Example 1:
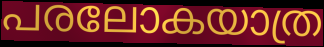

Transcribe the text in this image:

പരലോകയാത്ര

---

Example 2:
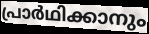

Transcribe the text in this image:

പ്രാർഥിക്കാനും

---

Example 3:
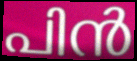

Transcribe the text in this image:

പിൻ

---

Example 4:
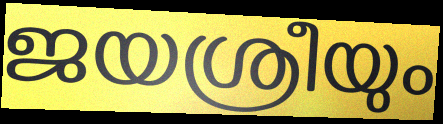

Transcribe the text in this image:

ജയശ്രീയും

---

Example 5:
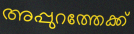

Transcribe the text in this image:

അപ്പുറത്തേക്ക്